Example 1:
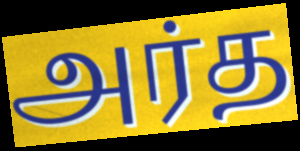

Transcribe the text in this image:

அர்த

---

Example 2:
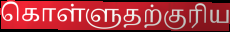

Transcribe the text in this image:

கொள்ளுதற்குரிய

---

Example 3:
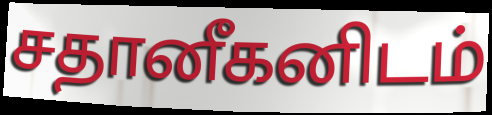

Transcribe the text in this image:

சதானீகனிடம்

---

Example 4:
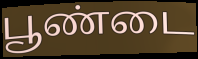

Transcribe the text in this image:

பூண்டை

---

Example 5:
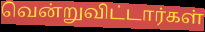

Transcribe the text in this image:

வென்றுவிட்டார்கள்